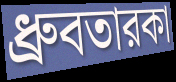
ধ্রুবতারকা